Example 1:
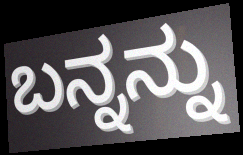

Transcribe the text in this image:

ಬನ್ನನ್ನು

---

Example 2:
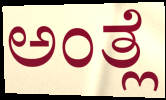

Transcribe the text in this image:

ಅಂತ್ಲೆ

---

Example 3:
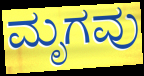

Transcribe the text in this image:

ಮೃಗವು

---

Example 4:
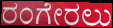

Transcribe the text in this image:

ರಂಗೇರಲು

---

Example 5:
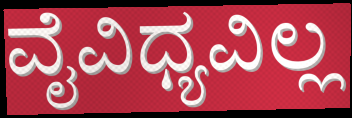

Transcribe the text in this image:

ವೈವಿಧ್ಯವಿಲ್ಲ